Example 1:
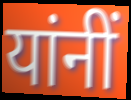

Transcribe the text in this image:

यांनीं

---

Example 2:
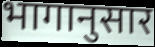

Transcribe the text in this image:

भागानुसार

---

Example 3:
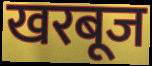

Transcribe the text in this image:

खरबूज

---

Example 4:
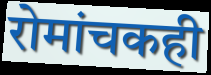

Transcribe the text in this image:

रोमांचकही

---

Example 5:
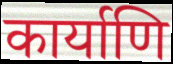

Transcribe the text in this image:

कार्याणि